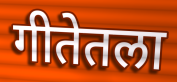
गीतेतला